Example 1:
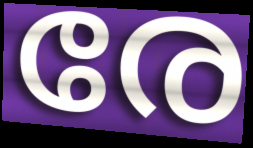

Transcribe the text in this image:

രേ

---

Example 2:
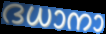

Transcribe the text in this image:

ദധാനാ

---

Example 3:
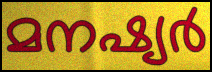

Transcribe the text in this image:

മനഷ്യർ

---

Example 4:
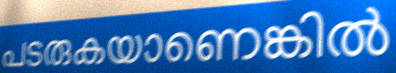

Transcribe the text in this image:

പടരുകയാണെങ്കിൽ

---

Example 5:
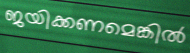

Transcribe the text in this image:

ജയിക്കണമെങ്കിൽ